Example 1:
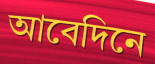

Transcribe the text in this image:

আবেদিনে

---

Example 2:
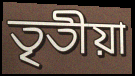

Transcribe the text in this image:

তৃতীয়া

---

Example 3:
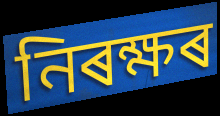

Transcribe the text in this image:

নিৰক্ষৰ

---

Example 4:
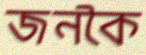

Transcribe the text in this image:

জনকৈ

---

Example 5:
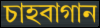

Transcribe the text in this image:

চাহবাগান